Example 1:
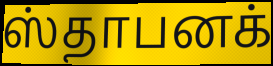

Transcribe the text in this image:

ஸ்தாபனக்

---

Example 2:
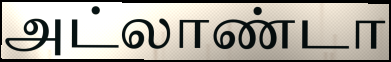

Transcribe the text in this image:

அட்லாண்டா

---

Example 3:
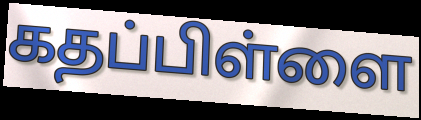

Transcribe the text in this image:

கதப்பிள்ளை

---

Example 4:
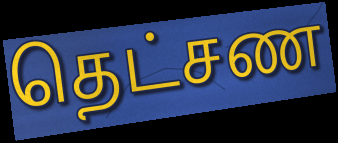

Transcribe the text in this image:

தெட்சண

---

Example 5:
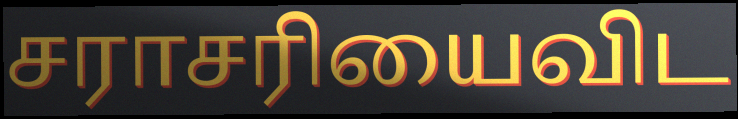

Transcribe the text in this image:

சராசரியைவிட